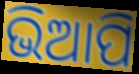
ଭିଆପି